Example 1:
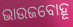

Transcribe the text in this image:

ଭାଉଜବୋହୂ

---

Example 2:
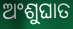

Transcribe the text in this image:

ଅଂଶୁଘାତ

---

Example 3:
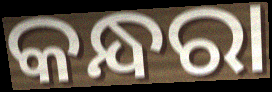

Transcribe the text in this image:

କନ୍ଧରା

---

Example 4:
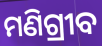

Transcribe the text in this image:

ମଣିଗ୍ରୀବ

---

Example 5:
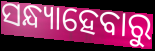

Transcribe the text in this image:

ସନ୍ଧ୍ୟାହେବାରୁ